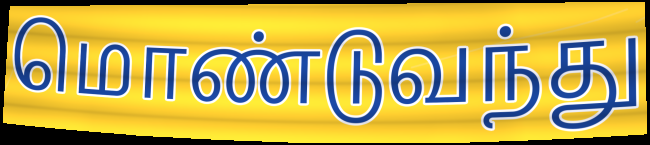
மொண்டுவந்து